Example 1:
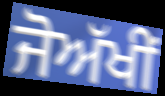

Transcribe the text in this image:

ਜੋਅੱਖੀਂ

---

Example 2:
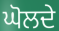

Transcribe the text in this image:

ਘੋਲਦੇ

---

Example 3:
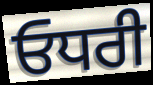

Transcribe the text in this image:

ਓਧਰੀ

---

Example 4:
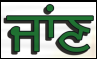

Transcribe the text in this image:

ਜਾਂਣ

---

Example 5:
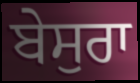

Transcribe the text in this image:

ਬੇਸੁਰਾ